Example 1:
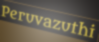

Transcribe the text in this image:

Peruvazuthi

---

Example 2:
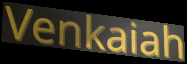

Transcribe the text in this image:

Venkaiah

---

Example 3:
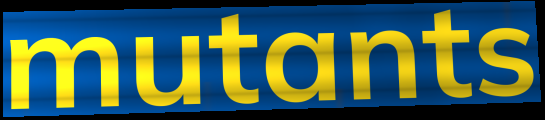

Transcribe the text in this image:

mutants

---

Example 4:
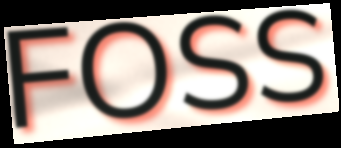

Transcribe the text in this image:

FOSS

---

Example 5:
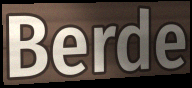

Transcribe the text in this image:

Berde